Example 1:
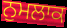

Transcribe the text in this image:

ਨੁਮਲਾਕ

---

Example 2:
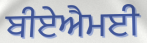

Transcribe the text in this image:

ਬੀਏਐਮਈ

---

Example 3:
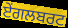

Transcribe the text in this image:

ਏਂਗਲਬਰਟ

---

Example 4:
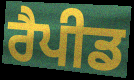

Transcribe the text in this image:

ਰੈਪੀਡ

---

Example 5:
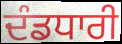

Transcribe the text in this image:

ਦੰਡਧਾਰੀ